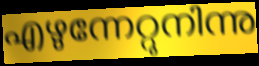
എഴുന്നേറ്റുനിന്നു